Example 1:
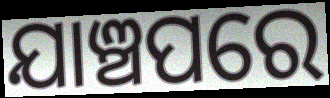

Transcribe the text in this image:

ଯାଞ୍ଚପରେ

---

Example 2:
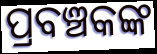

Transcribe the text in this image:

ପ୍ରବଞ୍ଚକଙ୍କ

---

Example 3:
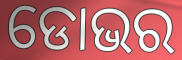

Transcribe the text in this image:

ଡୋଭର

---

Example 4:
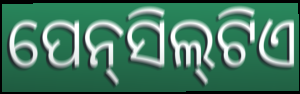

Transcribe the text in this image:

ପେନ୍‍ସିଲ୍‍ଟିଏ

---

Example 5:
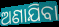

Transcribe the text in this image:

ଅଣାଯିବା